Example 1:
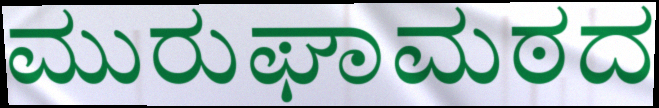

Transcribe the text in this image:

ಮುರುಘಾಮಠದ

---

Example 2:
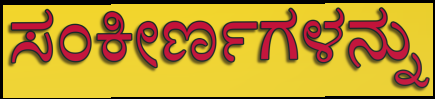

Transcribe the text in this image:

ಸಂಕೀರ್ಣಗಳನ್ನು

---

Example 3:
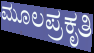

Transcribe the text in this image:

ಮೂಲಪ್ರಕೃತಿ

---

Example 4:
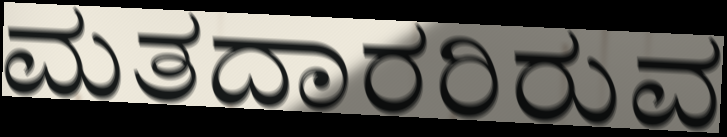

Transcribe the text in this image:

ಮತದಾರರಿರುವ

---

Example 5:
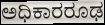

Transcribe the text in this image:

ಅಧಿಕಾರರೂಢ